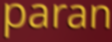
paran